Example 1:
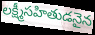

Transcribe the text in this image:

లక్ష్మీసహితుడనైన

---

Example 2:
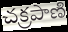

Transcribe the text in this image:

చక్రపాణి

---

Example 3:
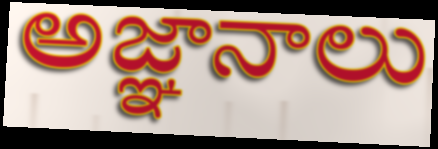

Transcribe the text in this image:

అజ్ఞానాలు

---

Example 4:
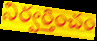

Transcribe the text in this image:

నిర్వర్తించం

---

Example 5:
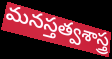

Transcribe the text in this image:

మనస్తత్వశాస్త్ర